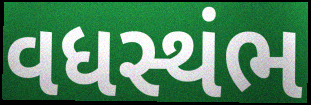
વધસ્થંભ